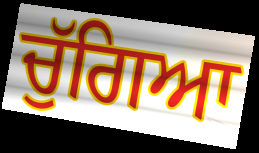
ਚੁੱਗਿਆ